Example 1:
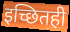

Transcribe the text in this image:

इच्छितही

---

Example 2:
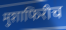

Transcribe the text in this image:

मुशाफिरीच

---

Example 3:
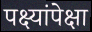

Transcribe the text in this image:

पक्ष्यांपेक्षा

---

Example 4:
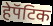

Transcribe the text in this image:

हेपॅटिक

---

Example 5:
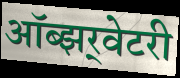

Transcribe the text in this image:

ऑब्झर्वेटरी